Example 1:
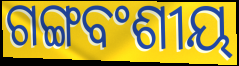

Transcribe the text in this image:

ଗଙ୍ଗବଂଶୀୟ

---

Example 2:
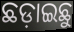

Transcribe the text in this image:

ଛଡ଼ାଇଛୁ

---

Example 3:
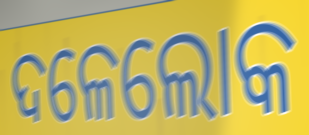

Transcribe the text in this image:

ଦଳେଲୋକ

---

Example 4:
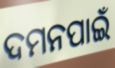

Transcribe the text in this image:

ଦମନପାଇଁ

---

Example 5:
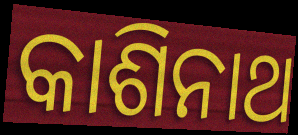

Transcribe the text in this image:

କାଶିନାଥ